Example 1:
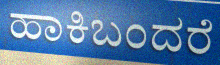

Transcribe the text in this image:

ಹಾಕಿಬಂದರೆ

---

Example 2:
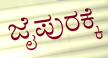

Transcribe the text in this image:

ಜೈಪುರಕ್ಕೆ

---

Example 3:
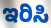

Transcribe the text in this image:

ಇರಿಸಿ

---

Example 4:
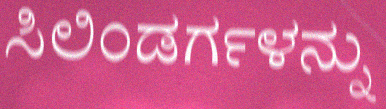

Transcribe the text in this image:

ಸಿಲಿಂಡರ್ಗಳನ್ನು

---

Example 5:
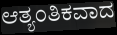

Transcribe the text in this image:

ಆತ್ಯಂತಿಕವಾದ